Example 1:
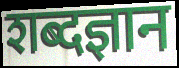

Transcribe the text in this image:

शब्दज्ञान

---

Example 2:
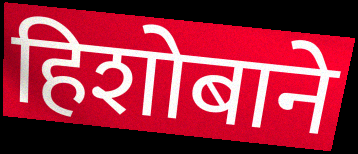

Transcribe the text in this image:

हिशोबाने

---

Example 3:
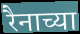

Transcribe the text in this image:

रैनाच्या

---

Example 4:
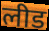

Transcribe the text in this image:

लीड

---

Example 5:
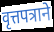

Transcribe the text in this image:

वृत्तपत्राने